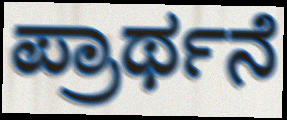
ಪ್ರಾರ್ಥನೆ